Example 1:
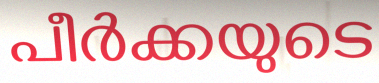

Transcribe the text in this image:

പീർക്കയുടെ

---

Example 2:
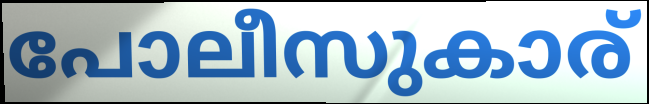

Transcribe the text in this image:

പോലീസുകാര്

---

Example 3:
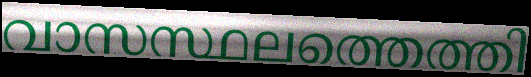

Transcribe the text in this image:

വാസസ്ഥലത്തെത്തി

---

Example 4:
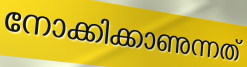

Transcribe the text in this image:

നോക്കിക്കാണുന്നത്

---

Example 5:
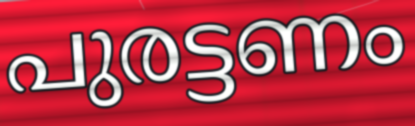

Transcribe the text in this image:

പുരട്ടണം